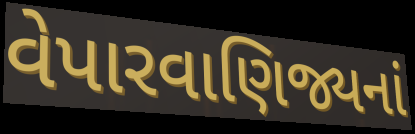
વેપારવાણિજ્યનાં